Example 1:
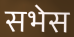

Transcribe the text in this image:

सभेस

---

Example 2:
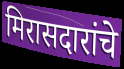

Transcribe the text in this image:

मिरासदारांचे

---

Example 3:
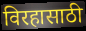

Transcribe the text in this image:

विरहासाठी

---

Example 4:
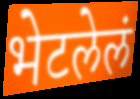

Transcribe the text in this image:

भेटलेलं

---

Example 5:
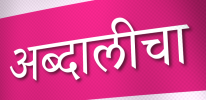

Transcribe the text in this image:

अब्दालीचा